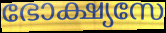
ഭോക്ഷ്യസേ